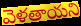
వెళతాయని